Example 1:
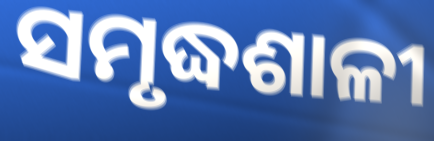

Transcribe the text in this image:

ସମୃଦ୍ଧଶାଳୀ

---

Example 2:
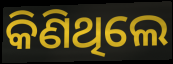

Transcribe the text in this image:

କିଣିଥିଲେ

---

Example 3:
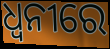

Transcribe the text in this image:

ଧ୍ଵନୀରେ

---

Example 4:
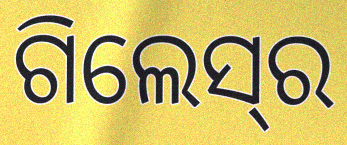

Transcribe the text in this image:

ଗିଲେସ୍‍ର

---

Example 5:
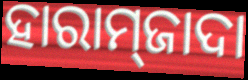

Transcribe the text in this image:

ହାରାମ୍‌ଜାଦା